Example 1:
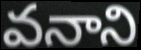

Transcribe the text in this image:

వనాని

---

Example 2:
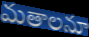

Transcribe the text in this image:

మతాలనూ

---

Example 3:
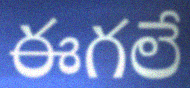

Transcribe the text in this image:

ఈగలే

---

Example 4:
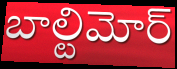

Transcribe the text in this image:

బాల్టిమోర్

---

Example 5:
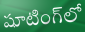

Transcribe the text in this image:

షూటింగ్‌లో